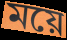
ময়ে